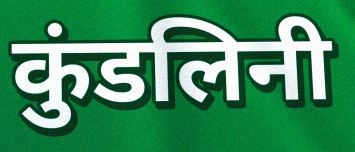
कुंडलिनी